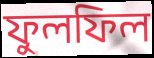
ফুলফিল